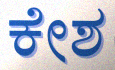
ಕೇಶ